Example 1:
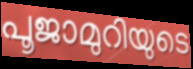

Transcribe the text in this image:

പൂജാമുറിയുടെ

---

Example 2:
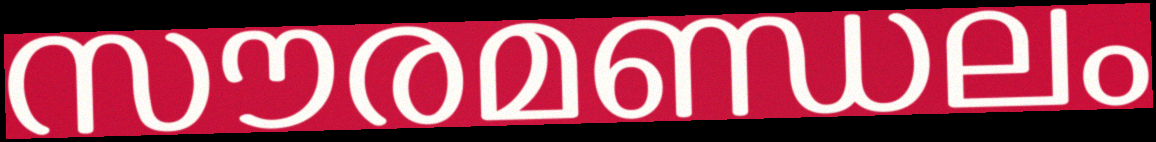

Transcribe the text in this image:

സൗരമണ്ഡലം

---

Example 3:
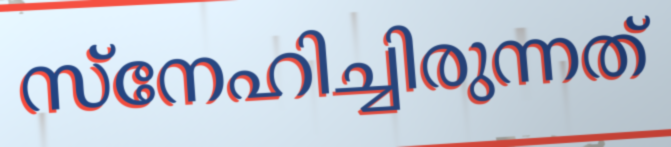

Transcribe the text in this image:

സ്നേഹിച്ചിരുന്നത്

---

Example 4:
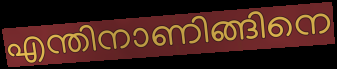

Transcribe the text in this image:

എന്തിനാണിങ്ങിനെ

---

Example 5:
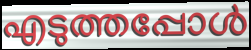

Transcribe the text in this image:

എടുത്തപ്പോൾ